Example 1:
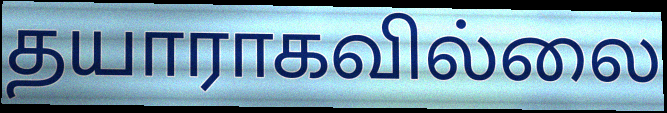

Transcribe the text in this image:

தயாராகவில்லை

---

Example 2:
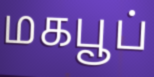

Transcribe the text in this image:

மகபூப்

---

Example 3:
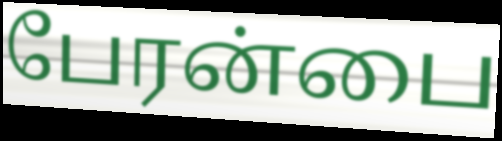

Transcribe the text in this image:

பேரன்பை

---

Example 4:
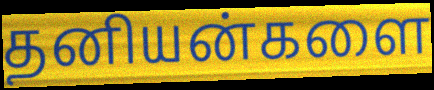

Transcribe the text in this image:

தனியன்களை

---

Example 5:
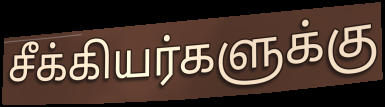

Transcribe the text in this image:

சீக்கியர்களுக்கு